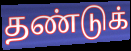
தண்டுக்